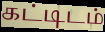
கட்டிடம்